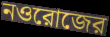
নওরোজের